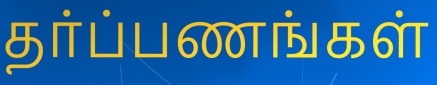
தர்ப்பணங்கள்